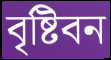
বৃষ্টিবন